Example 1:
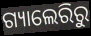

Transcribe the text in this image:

ଗ୍ୟାଲେରିରୁ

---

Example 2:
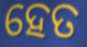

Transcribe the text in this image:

ହେତ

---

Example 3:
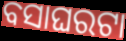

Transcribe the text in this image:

ବସାଘରଟା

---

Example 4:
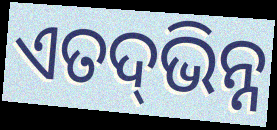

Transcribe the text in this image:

ଏତଦ୍‍ଭିନ୍ନ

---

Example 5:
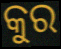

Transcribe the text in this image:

କୁର